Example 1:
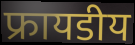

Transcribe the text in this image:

फ्रायडीय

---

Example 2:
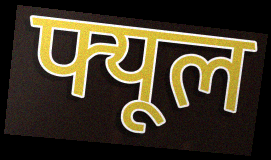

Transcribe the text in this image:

फ्यूल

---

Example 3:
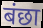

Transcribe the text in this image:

बंछा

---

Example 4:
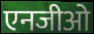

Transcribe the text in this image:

एनजीओ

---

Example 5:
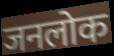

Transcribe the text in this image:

जनलोक